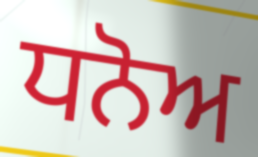
ਧਨੋਅ